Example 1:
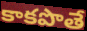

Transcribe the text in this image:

కాకపొతే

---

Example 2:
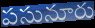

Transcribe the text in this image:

పసునూరు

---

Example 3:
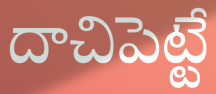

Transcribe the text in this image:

దాచిపెట్టే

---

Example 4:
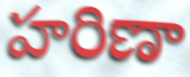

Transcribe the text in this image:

హరిణా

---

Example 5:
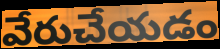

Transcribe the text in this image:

వేరుచేయడం